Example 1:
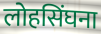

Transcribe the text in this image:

लोहसिंघना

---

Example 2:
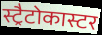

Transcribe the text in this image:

स्ट्रैटोकास्टर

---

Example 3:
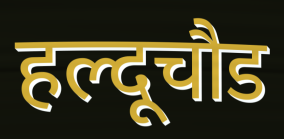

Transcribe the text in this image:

हल्दूचौड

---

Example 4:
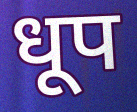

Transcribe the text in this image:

धूप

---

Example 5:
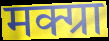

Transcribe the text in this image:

मक्ग्रा